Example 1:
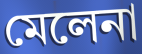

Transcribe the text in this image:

মেলেনা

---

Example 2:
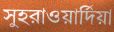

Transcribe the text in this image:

সুহরাওয়ার্দিয়া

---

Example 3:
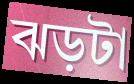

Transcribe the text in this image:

ঝড়টা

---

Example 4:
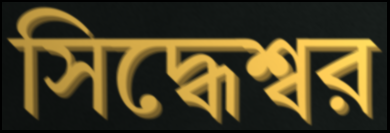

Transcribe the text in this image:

সিদ্ধেশ্বর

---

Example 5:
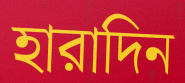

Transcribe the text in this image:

হারাদিন